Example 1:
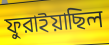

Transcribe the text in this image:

ফুরাইয়াছিল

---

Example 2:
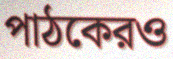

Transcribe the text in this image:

পাঠকেরও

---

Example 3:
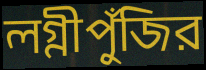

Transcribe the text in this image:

লগ্নীপুঁজির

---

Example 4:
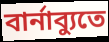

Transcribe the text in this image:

বার্নাব্যুতে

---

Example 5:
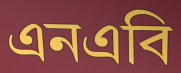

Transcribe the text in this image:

এনএবি